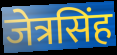
जेत्रसिंह